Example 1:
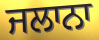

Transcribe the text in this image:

ਜਲਾਨਾ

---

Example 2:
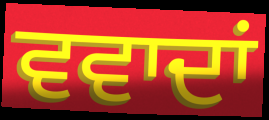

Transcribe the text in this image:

ਵਵਾਦਾਂ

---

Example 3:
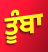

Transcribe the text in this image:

ਤੂੰਬਾ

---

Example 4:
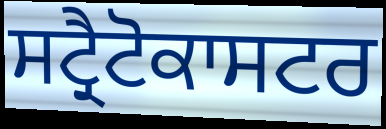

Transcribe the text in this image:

ਸਟ੍ਰੈਟੋਕਾਸਟਰ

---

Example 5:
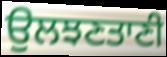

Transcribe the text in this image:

ਉਲਝਣਤਾਣੀ